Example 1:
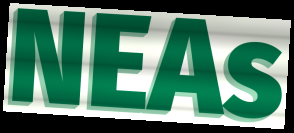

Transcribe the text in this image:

NEAs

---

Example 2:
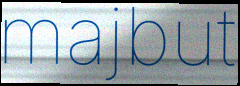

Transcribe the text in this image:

majbut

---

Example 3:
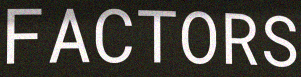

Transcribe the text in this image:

FACTORS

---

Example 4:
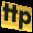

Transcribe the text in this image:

ttp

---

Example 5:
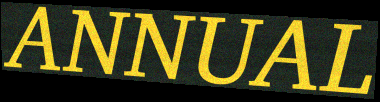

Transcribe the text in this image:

ANNUAL